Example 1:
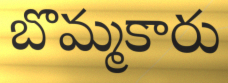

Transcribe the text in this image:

బొమ్మకారు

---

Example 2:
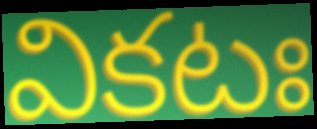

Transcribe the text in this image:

వికటః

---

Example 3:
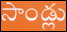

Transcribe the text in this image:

సాండ్లు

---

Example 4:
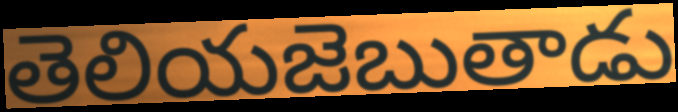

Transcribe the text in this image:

తెలియజెబుతాడు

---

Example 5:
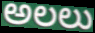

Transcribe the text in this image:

అలలు